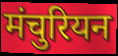
मंचुरियन